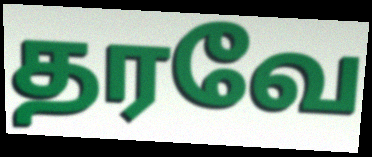
தரவே